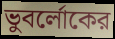
ভুবর্লোকের